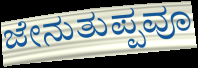
ಜೇನುತುಪ್ಪವೂ